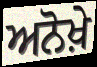
ਅਨੋਖ਼ੇ